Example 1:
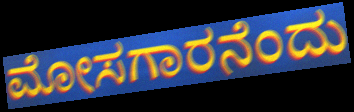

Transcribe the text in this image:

ಮೋಸಗಾರನೆಂದು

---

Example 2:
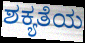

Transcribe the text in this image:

ಶಕ್ಯತೆಯ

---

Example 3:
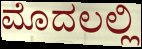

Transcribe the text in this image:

ಮೊದಲಲ್ಲಿ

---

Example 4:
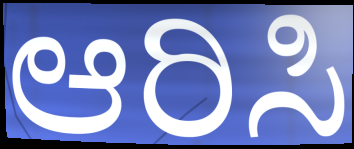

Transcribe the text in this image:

ಆರಿಸಿ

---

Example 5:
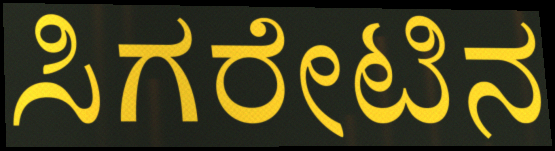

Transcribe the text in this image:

ಸಿಗರೇಟಿನ